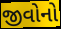
જીવોનો